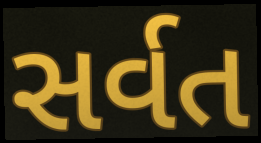
સર્વત